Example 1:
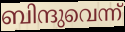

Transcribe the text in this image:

ബിന്ദുവെന്ന്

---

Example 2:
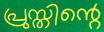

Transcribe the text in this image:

പ്രുസ്തിന്റെ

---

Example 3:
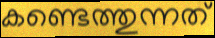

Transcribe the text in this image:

കണ്ടെത്തുന്നത്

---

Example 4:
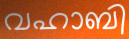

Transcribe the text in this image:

വഹാബി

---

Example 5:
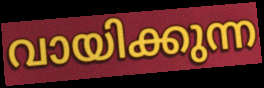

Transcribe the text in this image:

വായിക്കുന്ന